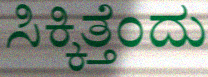
ಸಿಕ್ಕಿತ್ತೆಂದು